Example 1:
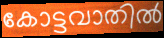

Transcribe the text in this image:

കോട്ടവാതിൽ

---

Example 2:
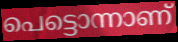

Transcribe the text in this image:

പെട്ടൊന്നാണ്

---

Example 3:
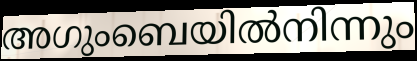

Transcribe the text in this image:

അഗുംബെയിൽനിന്നും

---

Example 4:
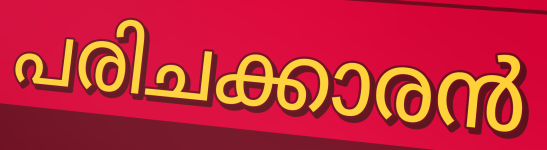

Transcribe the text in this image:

പരിചക്കാരൻ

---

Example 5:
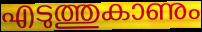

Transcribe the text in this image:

എടുത്തുകാണും